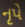
નૃપે